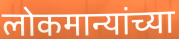
लोकमान्यांच्या